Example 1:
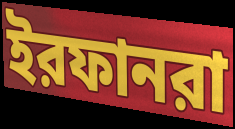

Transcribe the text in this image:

ইরফানরা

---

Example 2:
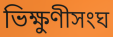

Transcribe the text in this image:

ভিক্ষুণীসংঘ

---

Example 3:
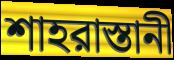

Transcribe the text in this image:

শাহরাস্তানী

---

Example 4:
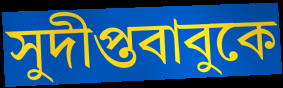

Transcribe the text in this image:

সুদীপ্তবাবুকে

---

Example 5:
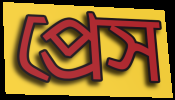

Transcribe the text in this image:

প্রেস